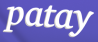
patay